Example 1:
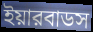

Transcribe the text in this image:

ইয়ারবাডস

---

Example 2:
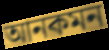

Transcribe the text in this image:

আনকমন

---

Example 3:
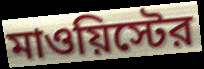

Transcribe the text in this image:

মাওয়িস্টের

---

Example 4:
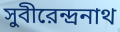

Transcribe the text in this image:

সুবীরেন্দ্রনাথ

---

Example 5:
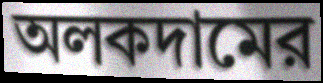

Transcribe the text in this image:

অলকদামের